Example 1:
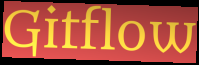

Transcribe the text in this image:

Gitflow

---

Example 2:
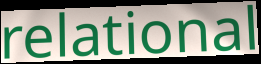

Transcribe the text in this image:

relational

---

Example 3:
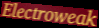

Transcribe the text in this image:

Electroweak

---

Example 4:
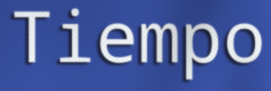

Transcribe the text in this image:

Tiempo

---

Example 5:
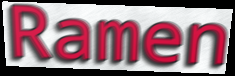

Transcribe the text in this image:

Ramen